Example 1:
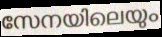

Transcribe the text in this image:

സേനയിലെയും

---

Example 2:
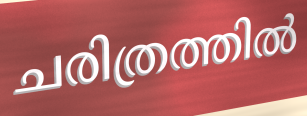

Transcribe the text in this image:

ചരിത്രത്തിൽ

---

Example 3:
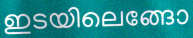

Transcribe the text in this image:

ഇടയിലെങ്ങോ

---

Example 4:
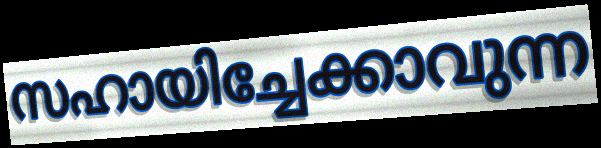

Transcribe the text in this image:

സഹായിച്ചേക്കാവുന്ന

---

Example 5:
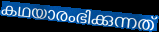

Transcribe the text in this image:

കഥയാരംഭിക്കുന്നത്